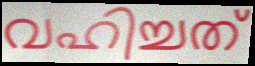
വഹിച്ചത്